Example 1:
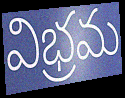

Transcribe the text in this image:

విభ్రమ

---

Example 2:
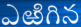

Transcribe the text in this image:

ఎఱిగిన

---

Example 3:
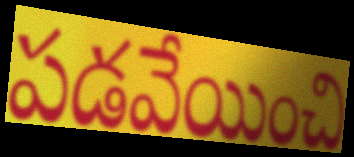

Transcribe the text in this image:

పడవేయించి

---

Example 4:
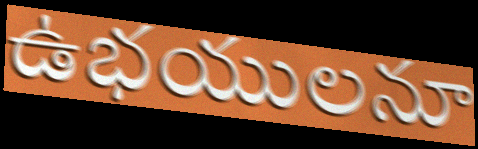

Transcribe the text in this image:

ఉభయులనూ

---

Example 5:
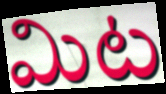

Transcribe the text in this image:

మిట